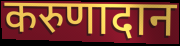
करुणादान